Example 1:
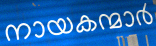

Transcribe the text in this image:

നായകന്മാർ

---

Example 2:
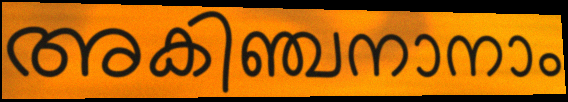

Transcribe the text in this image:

അകിഞ്ചനാനാം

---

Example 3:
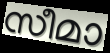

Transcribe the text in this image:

സീമാ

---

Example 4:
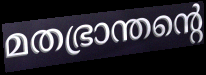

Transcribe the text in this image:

മതഭ്രാന്തന്റെ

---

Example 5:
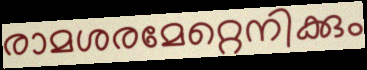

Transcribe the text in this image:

രാമശരമേറ്റെനിക്കും